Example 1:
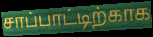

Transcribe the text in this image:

சாப்பாட்டிற்காக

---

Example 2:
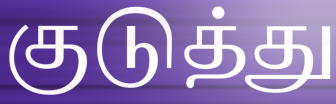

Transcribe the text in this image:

குடுத்து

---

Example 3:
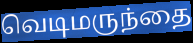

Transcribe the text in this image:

வெடிமருந்தை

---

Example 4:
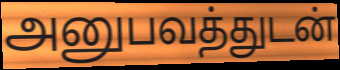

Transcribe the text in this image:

அனுபவத்துடன்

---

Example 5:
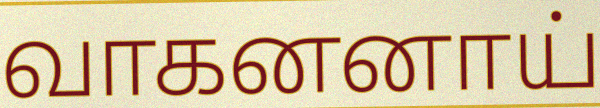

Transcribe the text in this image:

வாகனனாய்